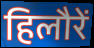
हिलौरें